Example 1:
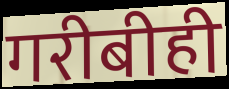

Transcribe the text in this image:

गरीबीही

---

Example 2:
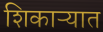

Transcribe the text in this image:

शिकाऱ्यात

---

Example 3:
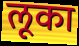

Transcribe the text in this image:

लूका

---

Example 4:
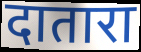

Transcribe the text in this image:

दातारा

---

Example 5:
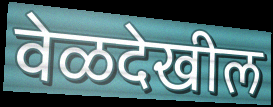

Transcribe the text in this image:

वेळदेखील